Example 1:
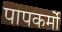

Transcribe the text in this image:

पापकर्मो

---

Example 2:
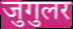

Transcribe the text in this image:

जुगुलर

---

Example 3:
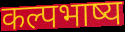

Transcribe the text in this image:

कल्पभाष्य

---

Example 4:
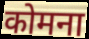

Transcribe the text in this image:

कोमना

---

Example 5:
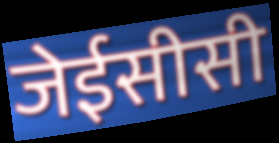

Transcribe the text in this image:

जेईसीसी